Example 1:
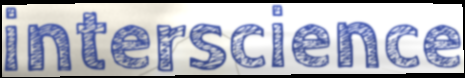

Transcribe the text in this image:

interscience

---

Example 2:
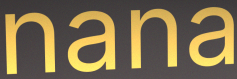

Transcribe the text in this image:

nana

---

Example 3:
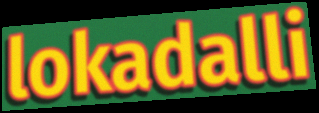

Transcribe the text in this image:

lokadalli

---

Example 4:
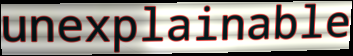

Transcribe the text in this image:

unexplainable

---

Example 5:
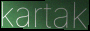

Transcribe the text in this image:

kartak